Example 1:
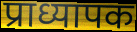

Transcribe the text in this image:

प्राध्यापक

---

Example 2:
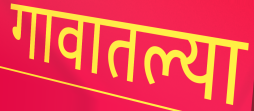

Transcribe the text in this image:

गावातल्या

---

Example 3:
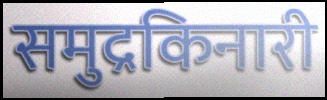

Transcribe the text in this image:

समुद्रकिनारी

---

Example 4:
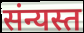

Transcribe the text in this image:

संन्यस्त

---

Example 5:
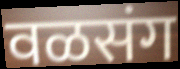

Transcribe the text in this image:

वळसंग